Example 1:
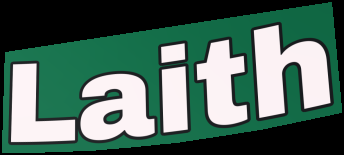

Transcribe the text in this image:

Laith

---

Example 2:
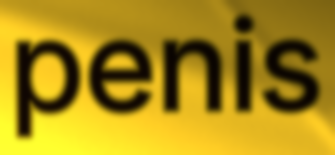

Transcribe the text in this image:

penis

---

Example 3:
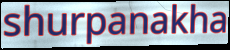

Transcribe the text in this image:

shurpanakha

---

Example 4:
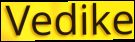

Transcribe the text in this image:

Vedike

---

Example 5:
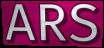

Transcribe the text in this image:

ARS